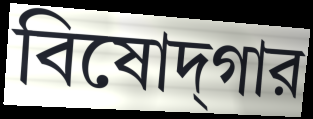
বিষোদ্‌গার